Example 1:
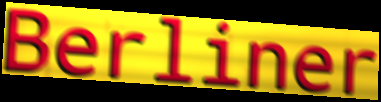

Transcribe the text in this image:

Berliner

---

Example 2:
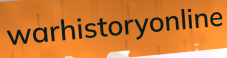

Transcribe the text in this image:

warhistoryonline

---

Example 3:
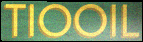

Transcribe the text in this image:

TIOOIL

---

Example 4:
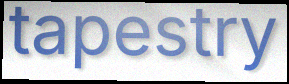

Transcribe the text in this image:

tapestry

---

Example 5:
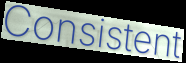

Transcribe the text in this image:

Consistent